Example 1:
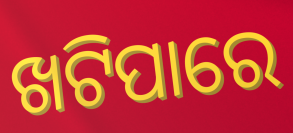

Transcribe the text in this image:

ଖଟିପାରେ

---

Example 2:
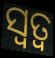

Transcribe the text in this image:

ସ୍ୱତ୍ୱ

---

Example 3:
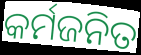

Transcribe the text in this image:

କର୍ମଜନିତ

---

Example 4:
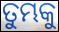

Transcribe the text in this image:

ତୁମ୍ଭକୁ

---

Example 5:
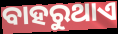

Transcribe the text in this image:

ବାହରୁଥାଏ